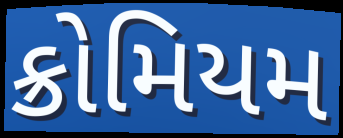
ક્રોમિયમ